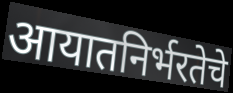
आयातनिर्भरतेचे